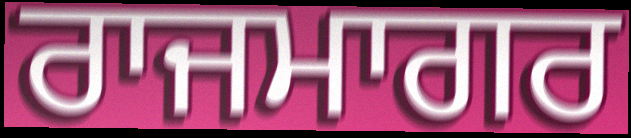
ਰਾਜਮਾਗਰ